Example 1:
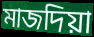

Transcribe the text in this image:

মাজদিয়া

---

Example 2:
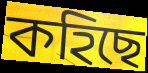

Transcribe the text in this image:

কহিছে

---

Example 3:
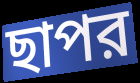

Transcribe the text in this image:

ছাপর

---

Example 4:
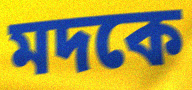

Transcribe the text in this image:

মদকে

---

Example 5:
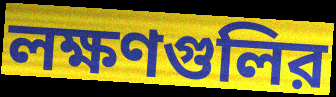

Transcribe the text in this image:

লক্ষণগুলির